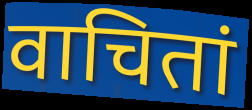
वाचितां